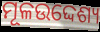
ମୂଳଉଦ୍ଦେଶ୍ୟ